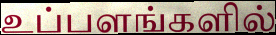
உப்பளங்களில்